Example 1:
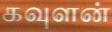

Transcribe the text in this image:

கவுளன்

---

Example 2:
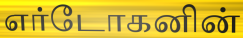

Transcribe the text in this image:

எர்டோகனின்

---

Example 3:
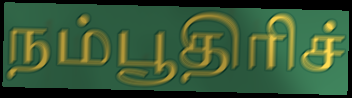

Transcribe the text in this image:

நம்பூதிரிச்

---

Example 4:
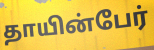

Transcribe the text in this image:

தாயின்பேர்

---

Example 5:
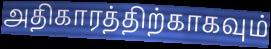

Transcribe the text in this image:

அதிகாரத்திற்காகவும்